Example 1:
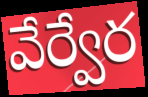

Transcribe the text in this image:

వేర్వేర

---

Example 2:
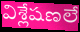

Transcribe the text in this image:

విశ్లేషణలే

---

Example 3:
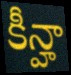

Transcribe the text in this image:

కీన్హా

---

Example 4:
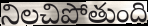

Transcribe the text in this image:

నిలచిపోతుంది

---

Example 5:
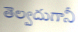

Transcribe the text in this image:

తెల్వదుగానీ